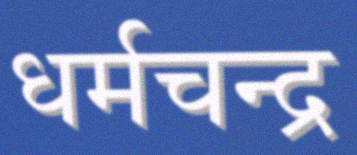
धर्मचन्द्र